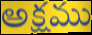
అక్షము